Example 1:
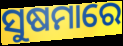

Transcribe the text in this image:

ସୁଷମାରେ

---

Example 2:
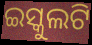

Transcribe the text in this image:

ଇସ୍କୁଲଟି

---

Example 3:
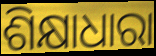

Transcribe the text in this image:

ଶିକ୍ଷାଧାରା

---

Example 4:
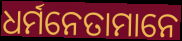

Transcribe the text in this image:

ଧର୍ମନେତାମାନେ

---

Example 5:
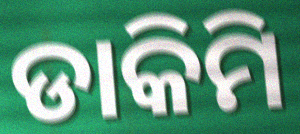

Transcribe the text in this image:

ଡାକିମି